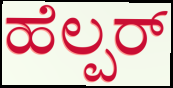
ಹೆಲ್ಪರ್